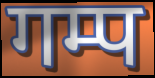
गम्प